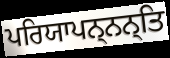
ਪਰਿਯਾਪਨ੍ਨਨ੍ਤਿ